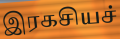
இரகசியச்